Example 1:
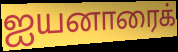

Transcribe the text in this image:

ஐயனாரைக்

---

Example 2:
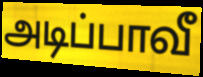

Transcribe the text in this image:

அடிப்பாவீ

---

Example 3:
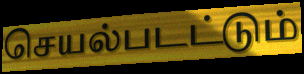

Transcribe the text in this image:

செயல்படட்டும்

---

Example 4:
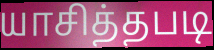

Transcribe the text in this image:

யாசித்தபடி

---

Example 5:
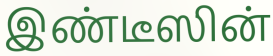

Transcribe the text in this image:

இண்டீஸின்